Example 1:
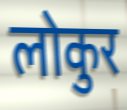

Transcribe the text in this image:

लोकुर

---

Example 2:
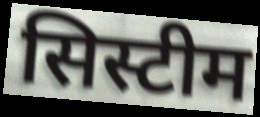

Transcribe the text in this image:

सिस्टीम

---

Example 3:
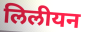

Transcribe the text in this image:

लिलीयन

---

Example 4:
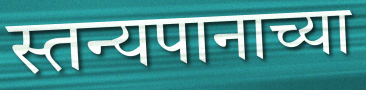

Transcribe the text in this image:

स्तन्यपानाच्या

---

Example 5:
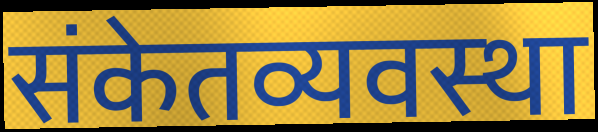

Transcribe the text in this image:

संकेतव्यवस्था